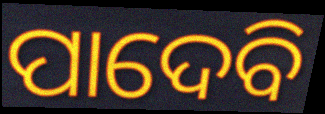
ପାଦେବି